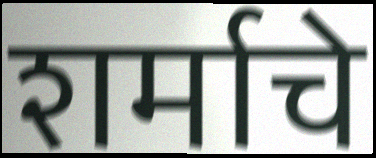
शर्माचे